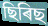
ছিৰিছ